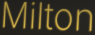
Milton